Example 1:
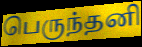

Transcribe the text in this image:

பெருந்தனி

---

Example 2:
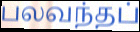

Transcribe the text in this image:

பலவந்தப்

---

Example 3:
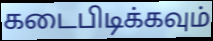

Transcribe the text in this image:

கடைபிடிக்கவும்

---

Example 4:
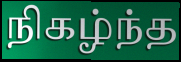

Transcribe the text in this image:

நிகழ்ந்த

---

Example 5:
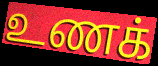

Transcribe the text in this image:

உணக்